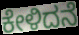
ಕೇಳಿದನೆ